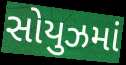
સોયુઝમાં